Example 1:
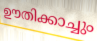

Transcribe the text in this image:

ഊതിക്കാച്ചും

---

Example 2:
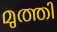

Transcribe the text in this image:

മുത്തി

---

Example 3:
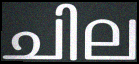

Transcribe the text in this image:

ചില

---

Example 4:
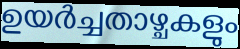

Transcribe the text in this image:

ഉയർച്ചതാഴ്ചകളും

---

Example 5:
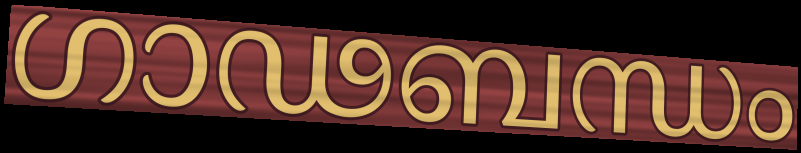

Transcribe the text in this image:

ഗാഢബന്ധം